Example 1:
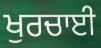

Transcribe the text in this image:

ਖੁਰਚਾਈ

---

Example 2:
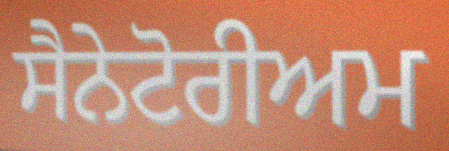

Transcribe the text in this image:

ਸੈਨੇਟੋਰੀਅਮ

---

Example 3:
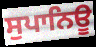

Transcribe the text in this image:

ਸੁਪਾਨਿਊ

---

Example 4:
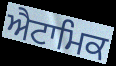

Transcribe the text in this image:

ਐਟਾਮਿਕ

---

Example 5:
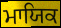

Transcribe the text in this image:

ਮਾਯਿਕ